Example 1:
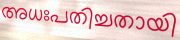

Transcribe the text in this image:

അധഃപതിച്ചതായി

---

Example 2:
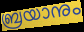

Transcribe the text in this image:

ബ്രയാനും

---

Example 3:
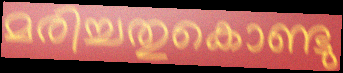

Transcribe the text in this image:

മരിച്ചതുകൊണ്ടു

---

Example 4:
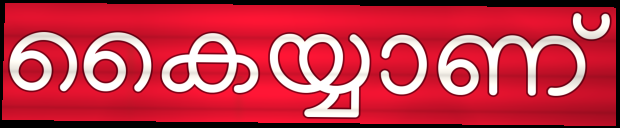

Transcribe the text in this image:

കൈയ്യാണ്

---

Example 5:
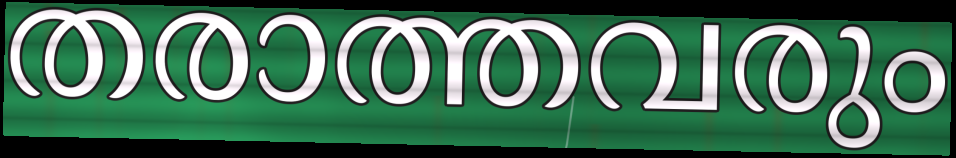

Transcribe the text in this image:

തരാത്തവരും